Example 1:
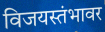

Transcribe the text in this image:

विजयस्तंभावर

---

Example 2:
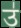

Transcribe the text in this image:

उ॑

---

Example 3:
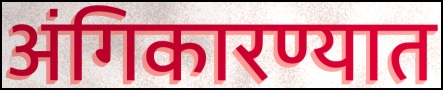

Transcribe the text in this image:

अंगिकारण्यात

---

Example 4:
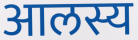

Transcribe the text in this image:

आलस्य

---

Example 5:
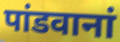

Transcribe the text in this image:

पांडवानां